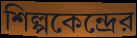
শিল্পকেন্দ্রের